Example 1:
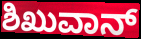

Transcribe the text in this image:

ಶಿಖುವಾನ್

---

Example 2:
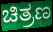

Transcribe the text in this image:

ಚಿತ್ರಣ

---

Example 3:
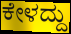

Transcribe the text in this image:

ಕೇಳದ್ದು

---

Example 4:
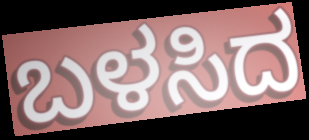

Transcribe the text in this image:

ಬಳಸಿದ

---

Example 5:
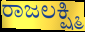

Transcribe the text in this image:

ರಾಜಲಕ್ಷ್ಮಿ